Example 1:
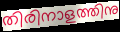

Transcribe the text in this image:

തിരിനാളത്തിനു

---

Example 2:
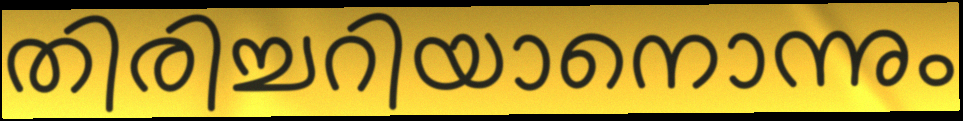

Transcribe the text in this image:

തിരിച്ചറിയാനൊന്നും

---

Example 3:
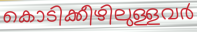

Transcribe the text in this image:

കൊടിക്കീഴിലുള്ളവർ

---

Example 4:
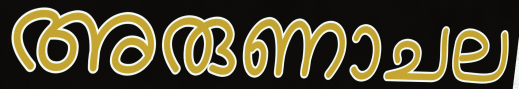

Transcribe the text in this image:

അരുണാചല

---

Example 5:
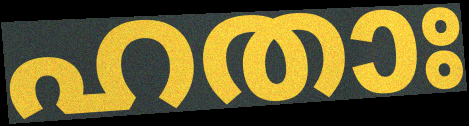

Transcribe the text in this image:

ഹതാഃ